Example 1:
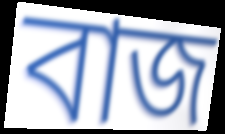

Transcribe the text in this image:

বাজ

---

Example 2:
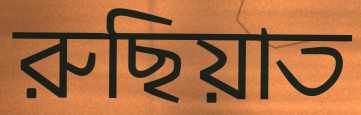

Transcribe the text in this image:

ৰুছিয়াত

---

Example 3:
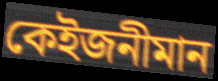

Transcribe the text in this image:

কেইজনীমান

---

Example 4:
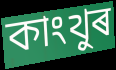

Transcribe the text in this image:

কাংথুৰ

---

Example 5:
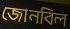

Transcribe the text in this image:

জোনবিল